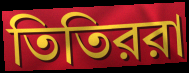
তিতিররা